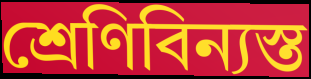
শ্রেণিবিন্যস্ত